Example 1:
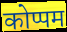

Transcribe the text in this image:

कोप्पम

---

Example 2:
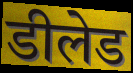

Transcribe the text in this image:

डीलेड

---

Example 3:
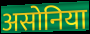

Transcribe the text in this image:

असोनिया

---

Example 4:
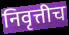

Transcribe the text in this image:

निवृत्तीच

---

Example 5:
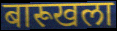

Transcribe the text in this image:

बारूखला